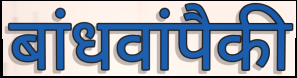
बांधवांपैकी